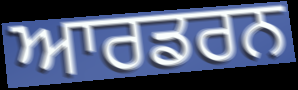
ਆਰਡਰਨ